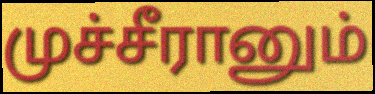
முச்சீரானும்